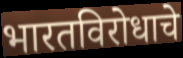
भारतविरोधाचे